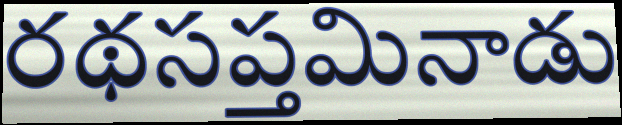
రథసప్తమినాడు